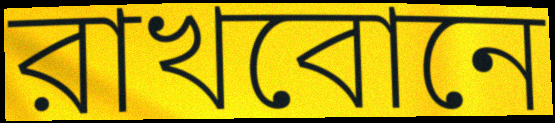
রাখবোনে